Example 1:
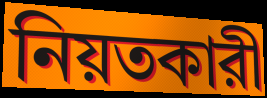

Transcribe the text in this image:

নিয়তকারী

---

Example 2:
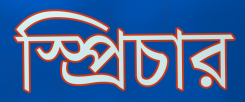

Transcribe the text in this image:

স্প্রিচার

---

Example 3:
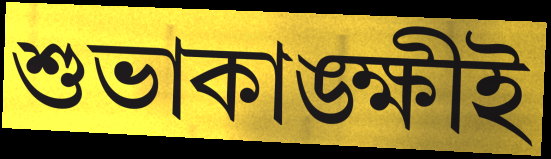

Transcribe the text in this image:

শুভাকাঙ্ক্ষীই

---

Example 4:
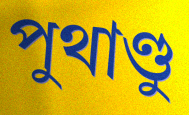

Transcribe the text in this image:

পুথাণ্ডু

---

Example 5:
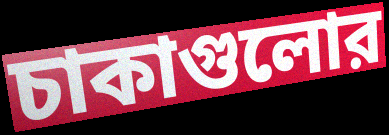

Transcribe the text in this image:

চাকাগুলোর